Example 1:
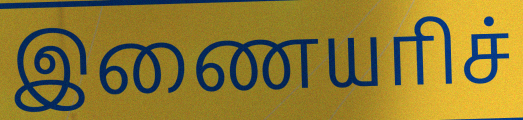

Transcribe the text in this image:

இணையரிச்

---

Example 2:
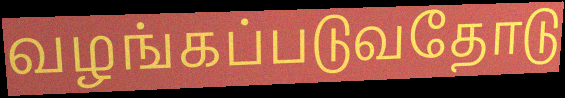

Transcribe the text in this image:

வழங்கப்படுவதோடு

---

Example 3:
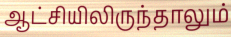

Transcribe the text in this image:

ஆட்சியிலிருந்தாலும்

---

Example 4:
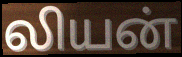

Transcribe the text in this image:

லியன்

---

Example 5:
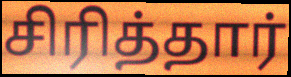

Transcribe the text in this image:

சிரித்தார்